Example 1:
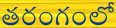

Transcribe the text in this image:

తరంగంలో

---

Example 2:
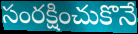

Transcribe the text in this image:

సంరక్షించుకొనే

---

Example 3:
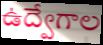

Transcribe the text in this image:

ఉద్వేగాల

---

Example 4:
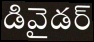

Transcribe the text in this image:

డివైడర్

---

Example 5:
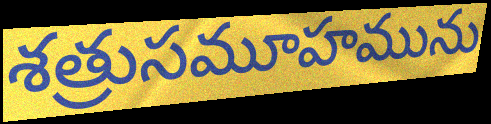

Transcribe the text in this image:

శత్రుసమూహమును